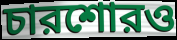
চারশোরও